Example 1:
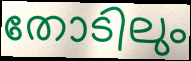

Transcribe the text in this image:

തോടിലും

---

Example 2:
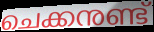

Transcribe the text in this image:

ചെക്കനുണ്ട്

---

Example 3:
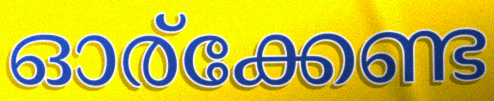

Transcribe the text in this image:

ഓര്ക്കേണ്ട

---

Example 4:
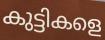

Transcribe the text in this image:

കുട്ടികളെ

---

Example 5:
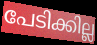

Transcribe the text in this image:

പേടിക്കില്ല